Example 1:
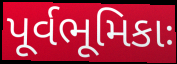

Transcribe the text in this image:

પૂર્વભૂમિકાઃ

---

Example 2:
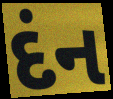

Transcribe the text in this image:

દંન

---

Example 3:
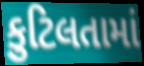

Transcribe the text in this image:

કુટિલતામાં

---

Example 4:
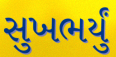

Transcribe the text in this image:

સુખભર્યું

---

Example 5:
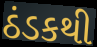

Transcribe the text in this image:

ઠંડકથી